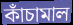
কাঁচামাল